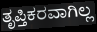
ತೃಪ್ತಿಕರವಾಗಿಲ್ಲ